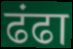
ढंढा